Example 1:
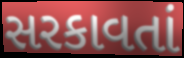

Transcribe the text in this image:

સરકાવતાં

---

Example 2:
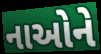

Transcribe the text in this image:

નાઓને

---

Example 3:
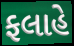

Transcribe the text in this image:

ફલાહે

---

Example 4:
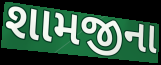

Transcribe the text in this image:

શામજીના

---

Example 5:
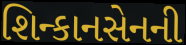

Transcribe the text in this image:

શિન્કાનસેનની